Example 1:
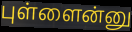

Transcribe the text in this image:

புள்ளைன்னு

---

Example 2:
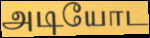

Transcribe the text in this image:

அடியோட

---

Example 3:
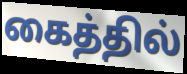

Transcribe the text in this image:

கைத்தில்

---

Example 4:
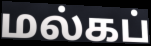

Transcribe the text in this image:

மல்கப்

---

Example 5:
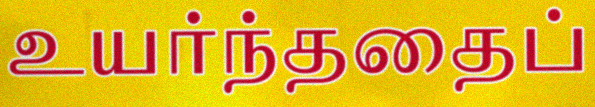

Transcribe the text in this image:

உயர்ந்ததைப்